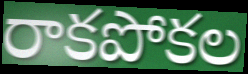
రాకపోకల